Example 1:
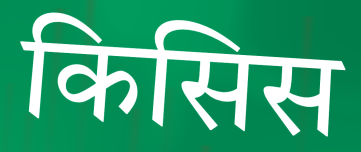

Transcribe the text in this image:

किसिस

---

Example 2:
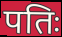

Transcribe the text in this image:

पतिः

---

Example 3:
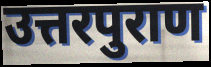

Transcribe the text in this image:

उत्तरपुराण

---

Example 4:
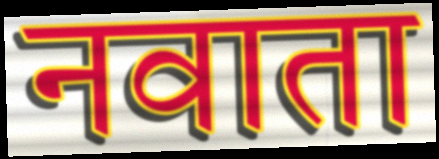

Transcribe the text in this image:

नवाता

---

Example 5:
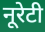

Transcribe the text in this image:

नूरेटी